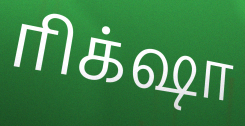
ரிக்‌ஷா